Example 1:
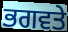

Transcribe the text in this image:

ਭਗਵਤੇ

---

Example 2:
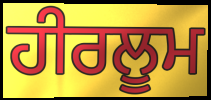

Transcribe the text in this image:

ਹੀਰਲੂਮ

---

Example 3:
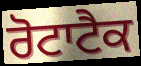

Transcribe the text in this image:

ਰੋਟਾਟੈਕ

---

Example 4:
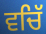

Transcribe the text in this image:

ਵਚਿੱ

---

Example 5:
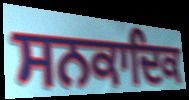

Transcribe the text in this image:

ਸਨਕਾਦਿਕ